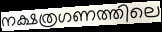
നക്ഷത്രഗണത്തിലെ